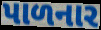
પાળનાર